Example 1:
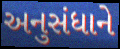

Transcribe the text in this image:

અનુસંધાને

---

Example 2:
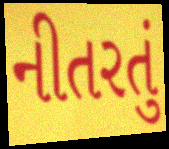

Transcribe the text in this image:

નીતરતું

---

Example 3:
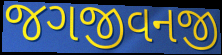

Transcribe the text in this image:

જગજીવનજી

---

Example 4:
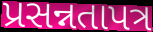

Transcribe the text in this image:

પ્રસન્નતાપત્ર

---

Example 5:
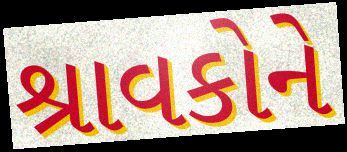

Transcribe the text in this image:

શ્રાવકોને